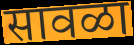
सावळा